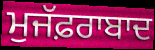
ਮੁਜੱਫ਼ਰਾਬਾਦ